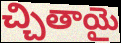
చ్చితాయై